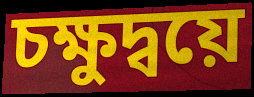
চক্ষুদ্বয়ে